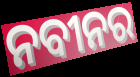
ନବୀନର